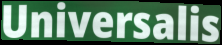
Universalis